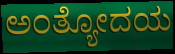
ಅಂತ್ಯೋದಯ